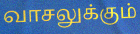
வாசலுக்கும்